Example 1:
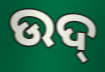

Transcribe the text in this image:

ଉଦ୍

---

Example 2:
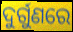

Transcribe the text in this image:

ଦୁର୍ଗୁଣରେ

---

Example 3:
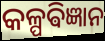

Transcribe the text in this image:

କଳ୍ପଵିଜ୍ଞାନ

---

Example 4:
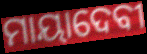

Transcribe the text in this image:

ମାୟାଦେବୀ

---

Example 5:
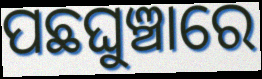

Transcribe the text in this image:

ପଛଘୁଞ୍ଚାରେ